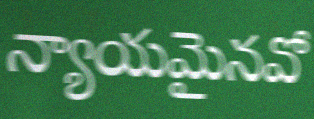
న్యాయమైనవో